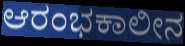
ಆರಂಭಕಾಲೀನ